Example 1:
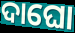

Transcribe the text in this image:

ଦାଘୋ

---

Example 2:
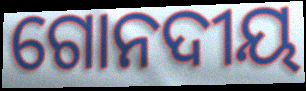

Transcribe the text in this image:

ଗୋନଦୀୟ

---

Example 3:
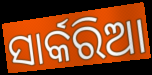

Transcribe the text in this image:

ସାର୍କରିଆ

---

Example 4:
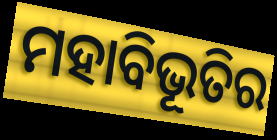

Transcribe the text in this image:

ମହାବିଭୂତିର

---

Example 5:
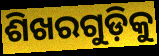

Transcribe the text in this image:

ଶିଖରଗୁଡ଼ିକୁ